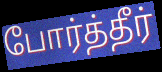
போர்த்தீர்